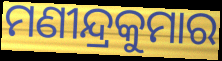
ମଣୀନ୍ଦ୍ରକୁମାର